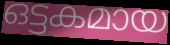
ഒട്ടകമായ